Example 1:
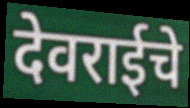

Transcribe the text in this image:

देवराईचे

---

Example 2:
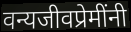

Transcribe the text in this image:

वन्यजीवप्रेमींनी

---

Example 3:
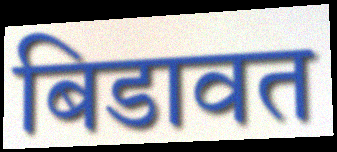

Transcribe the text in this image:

बिडावत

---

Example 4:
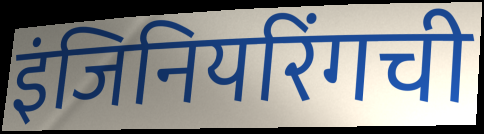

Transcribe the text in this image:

इंजिनियरिंगची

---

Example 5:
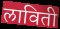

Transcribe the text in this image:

लाविती